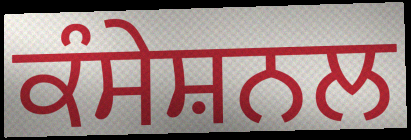
ਕੰਸੇਸ਼ਨਲ